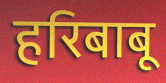
हरिबाबू